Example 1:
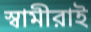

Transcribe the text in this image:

স্বামীরাই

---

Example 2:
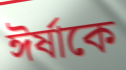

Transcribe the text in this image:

ঈর্ষাকে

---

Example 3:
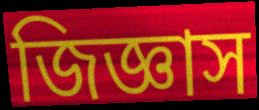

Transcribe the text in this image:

জিজ্ঞাস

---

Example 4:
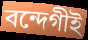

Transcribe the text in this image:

বন্দেগীই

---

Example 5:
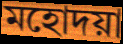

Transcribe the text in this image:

মহোদয়া